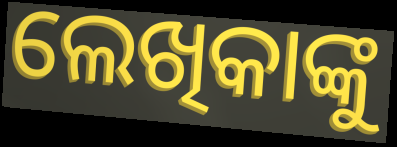
ଲେଖିକାଙ୍କୁ